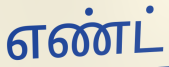
எண்ட்